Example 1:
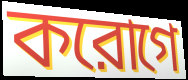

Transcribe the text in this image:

করোগে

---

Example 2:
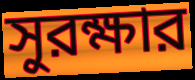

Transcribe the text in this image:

সুরক্ষার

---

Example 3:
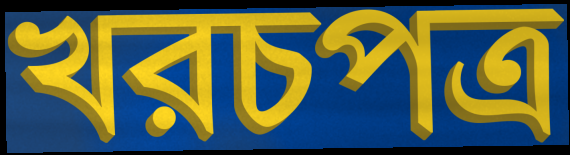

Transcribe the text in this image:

খরচপত্র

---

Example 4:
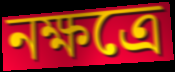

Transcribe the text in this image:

নক্ষত্রে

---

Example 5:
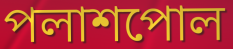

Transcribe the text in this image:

পলাশপোল